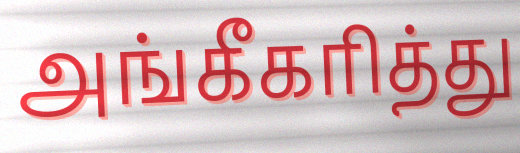
அங்கீகரித்து